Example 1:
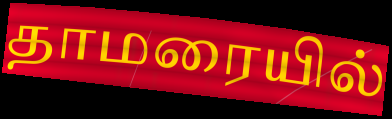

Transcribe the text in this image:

தாமரையில்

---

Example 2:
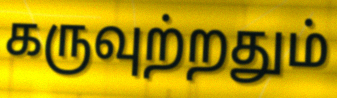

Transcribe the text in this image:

கருவுற்றதும்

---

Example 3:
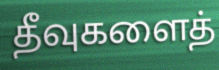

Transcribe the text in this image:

தீவுகளைத்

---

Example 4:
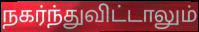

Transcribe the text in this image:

நகர்ந்துவிட்டாலும்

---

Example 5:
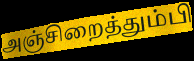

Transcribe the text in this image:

அஞ்சிறைத்தும்பி